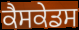
ਕੈਸਕੇਡਸ